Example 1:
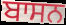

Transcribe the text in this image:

ਬਾਸਨ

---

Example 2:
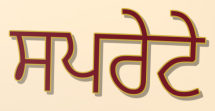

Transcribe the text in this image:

ਸਪਰੇਟੇ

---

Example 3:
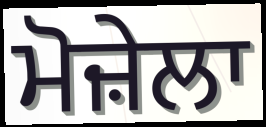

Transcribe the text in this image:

ਮੋਜ਼ੇਲਾ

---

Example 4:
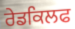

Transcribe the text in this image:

ਰੇਡਕਿਲਫ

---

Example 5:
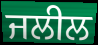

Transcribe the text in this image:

ਜਲੀਲ